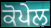
ਕੋਪੇਲ